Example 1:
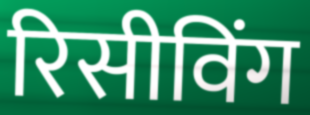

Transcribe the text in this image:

रिसीविंग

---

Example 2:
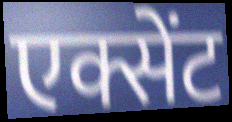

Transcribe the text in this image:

एक्सेंट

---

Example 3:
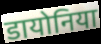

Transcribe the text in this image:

डायोनिया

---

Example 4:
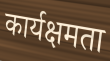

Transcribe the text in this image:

कार्यक्षमता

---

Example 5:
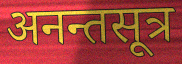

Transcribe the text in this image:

अनन्तसूत्र